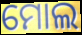
ମୋଲ